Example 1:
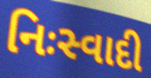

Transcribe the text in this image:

નિઃસ્વાદી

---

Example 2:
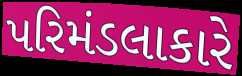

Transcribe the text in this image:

પરિમંડલાકારે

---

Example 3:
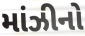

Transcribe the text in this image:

માંઝીનો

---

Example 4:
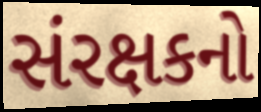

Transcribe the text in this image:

સંરક્ષકનો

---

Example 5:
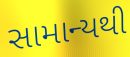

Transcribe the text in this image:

સામાન્યથી